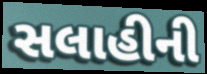
સલાહીની